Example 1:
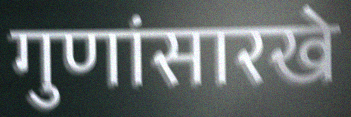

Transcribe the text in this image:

गुणांसारखे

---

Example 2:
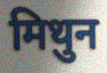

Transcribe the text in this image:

मिथुन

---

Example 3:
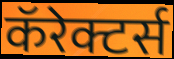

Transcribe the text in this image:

कॅरेक्टर्स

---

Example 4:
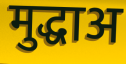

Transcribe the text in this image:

मुद्धाअ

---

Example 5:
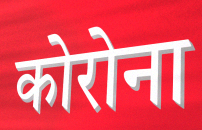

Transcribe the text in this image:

कोरोना